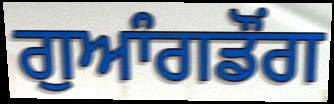
ਗੁਆੰਗਡੌਂਗ